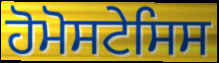
ਹੋਮੋਸਟੇਸਿਸ